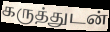
கருத்துடன்